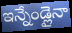
ఇన్నేండ్లైనా